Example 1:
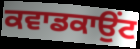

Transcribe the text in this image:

ਕਵਾਡਕਾਉਂਟ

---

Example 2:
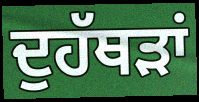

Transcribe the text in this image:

ਦੁਹੱਥੜਾਂ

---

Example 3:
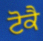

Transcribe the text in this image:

ਟੋਕੈ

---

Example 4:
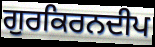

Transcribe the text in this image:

ਗੁਰਕਿਰਨਦੀਪ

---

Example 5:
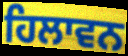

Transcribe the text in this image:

ਹਿਲਾਵਨ